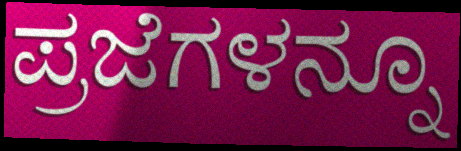
ಪ್ರಜೆಗಳನ್ನೂ